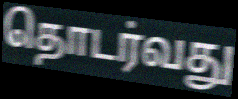
தொடர்வது